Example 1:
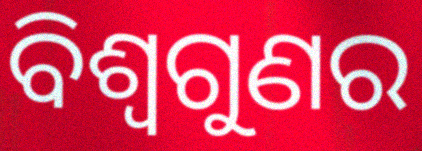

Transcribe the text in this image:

ବିଶ୍ୱଗୁଣର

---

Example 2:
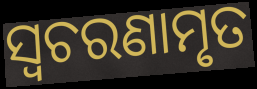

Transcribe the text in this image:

ସ୍ଵଚରଣାମୃତ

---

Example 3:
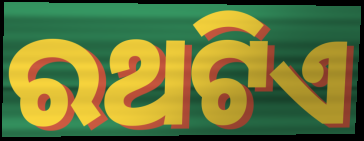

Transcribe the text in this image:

ରଥଟିଏ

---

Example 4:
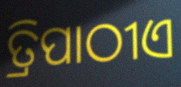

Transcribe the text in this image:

ତ୍ରିପାଠୀଏ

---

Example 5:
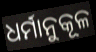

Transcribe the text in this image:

ଧର୍ମାନୁକୂଳ